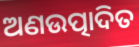
ଅଣଉତ୍ପାଦିତ